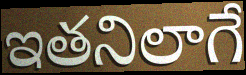
ఇతనిలాగే